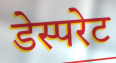
डेस्परेट